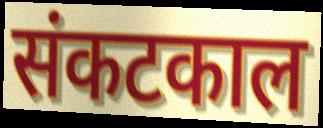
संकटकाल